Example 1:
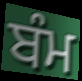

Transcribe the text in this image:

ਬੰਮ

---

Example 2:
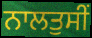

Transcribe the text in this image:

ਨਾਲਤੁਸੀਂ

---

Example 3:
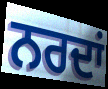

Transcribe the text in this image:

ਨਰਦਾਂ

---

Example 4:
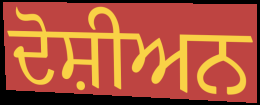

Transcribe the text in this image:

ਦੋਸ਼ੀਅਨ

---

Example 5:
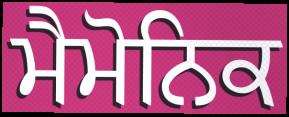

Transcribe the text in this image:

ਮੈਮੋਨਿਕ